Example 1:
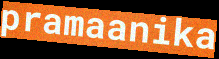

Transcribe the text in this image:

pramaanika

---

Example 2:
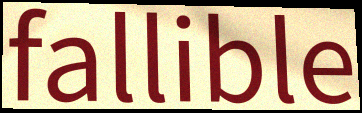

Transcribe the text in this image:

fallible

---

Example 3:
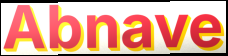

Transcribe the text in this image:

Abnave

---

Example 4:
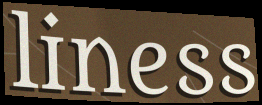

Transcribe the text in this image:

liness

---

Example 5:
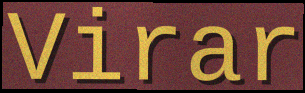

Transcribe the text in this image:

Virar